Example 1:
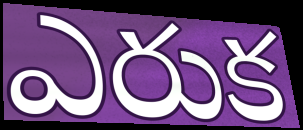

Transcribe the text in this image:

ఎరుక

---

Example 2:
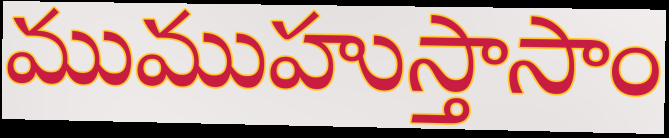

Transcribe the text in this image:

ముముహుస్తాసాం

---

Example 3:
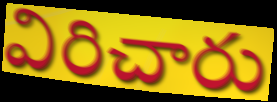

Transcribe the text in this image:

విరిచారు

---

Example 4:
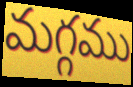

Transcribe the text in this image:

మగ్గము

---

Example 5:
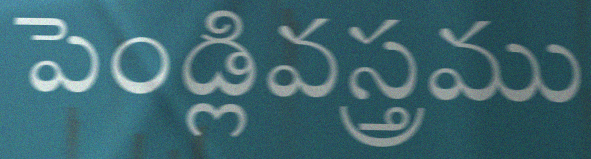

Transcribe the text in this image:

పెండ్లివస్త్రము